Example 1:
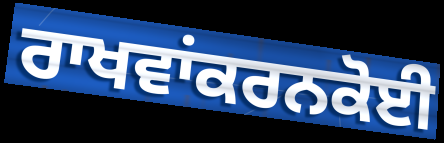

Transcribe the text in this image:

ਰਾਖਵਾਂਕਰਨਕੋਈ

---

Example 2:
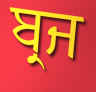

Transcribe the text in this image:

ਬ੍ਰਜ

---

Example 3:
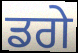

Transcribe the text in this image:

ਡਗੇ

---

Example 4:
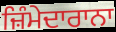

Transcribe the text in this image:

ਜ਼ਿੰਮੇਦਾਰਾਨਾ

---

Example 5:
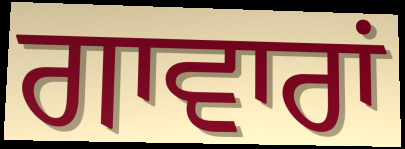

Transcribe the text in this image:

ਗਾਵਾਰਾਂ